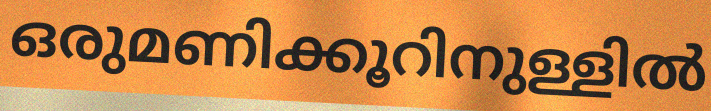
ഒരുമണിക്കൂറിനുള്ളിൽ